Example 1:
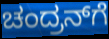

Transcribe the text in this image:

ಚಂದ್ರನ್‌ಗೆ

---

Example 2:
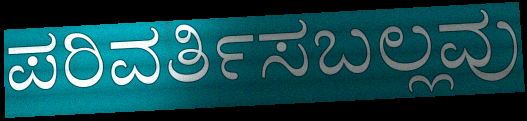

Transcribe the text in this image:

ಪರಿವರ್ತಿಸಬಲ್ಲವು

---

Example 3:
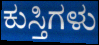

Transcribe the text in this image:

ಕುಸ್ತಿಗಳು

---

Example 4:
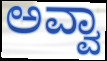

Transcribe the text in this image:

ಅವ್ವಾ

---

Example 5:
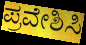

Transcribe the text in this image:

ಪ್ರವೇಶಿಸಿ